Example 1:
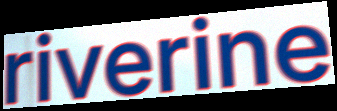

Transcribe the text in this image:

riverine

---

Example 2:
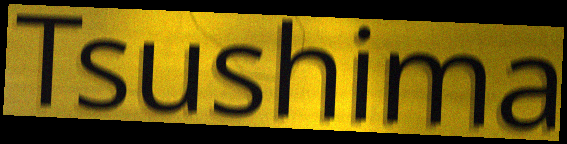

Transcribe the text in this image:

Tsushima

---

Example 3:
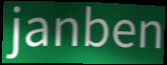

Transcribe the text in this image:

janben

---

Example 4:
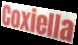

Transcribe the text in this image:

Coxiella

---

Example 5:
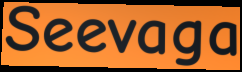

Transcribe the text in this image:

Seevaga